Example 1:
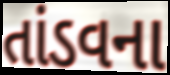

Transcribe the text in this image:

તાંડવના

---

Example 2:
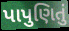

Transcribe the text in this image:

પાપુણિતું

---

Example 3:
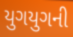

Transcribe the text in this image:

યુગયુગની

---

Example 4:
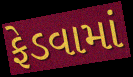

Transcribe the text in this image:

ફેડવામાં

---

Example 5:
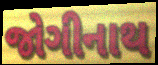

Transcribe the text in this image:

જોગીનાથ